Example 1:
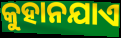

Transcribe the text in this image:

କୁହାନଯାଏ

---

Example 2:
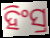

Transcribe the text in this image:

ହିଂସ୍ର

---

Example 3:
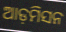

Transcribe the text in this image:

ଆଡ଼ମିସନ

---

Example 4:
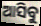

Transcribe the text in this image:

ଆସିବୁ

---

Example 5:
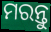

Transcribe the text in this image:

ମରନ୍ତୁ